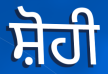
ਸ਼ੋਹੀ